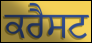
ਕਰੈਸਟ